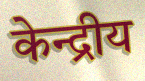
केन्द्रीय